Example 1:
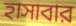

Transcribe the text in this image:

হাসাবার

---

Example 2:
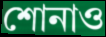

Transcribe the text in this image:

শোনাও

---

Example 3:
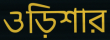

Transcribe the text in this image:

ওড়িশার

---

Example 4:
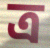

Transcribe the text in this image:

ত্র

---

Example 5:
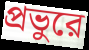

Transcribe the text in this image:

প্রভুরে